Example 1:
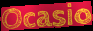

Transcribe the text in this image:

Ocasio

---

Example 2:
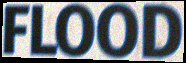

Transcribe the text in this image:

FLOOD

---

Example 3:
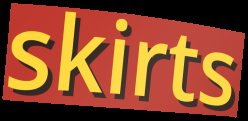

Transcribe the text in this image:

skirts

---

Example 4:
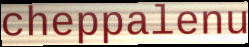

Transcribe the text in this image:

cheppalenu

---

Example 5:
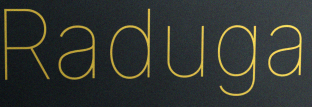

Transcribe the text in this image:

Raduga